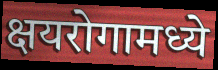
क्षयरोगामध्ये